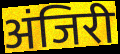
अंजिरी